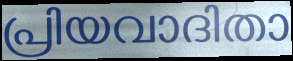
പ്രിയവാദിതാ